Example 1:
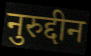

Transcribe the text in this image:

नुरुद्दीन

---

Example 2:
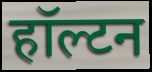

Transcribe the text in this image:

हॉल्टन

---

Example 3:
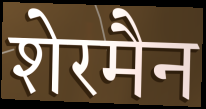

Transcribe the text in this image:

शेरमैन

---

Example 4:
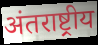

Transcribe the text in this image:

अंतराष्ट्रीय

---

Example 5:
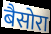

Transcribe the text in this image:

बैसोरा